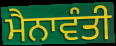
ਮੈਨਾਵੰਤੀ